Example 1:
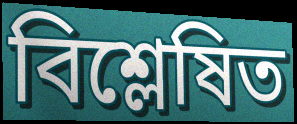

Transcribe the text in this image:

বিশ্লেষিত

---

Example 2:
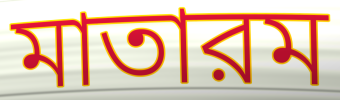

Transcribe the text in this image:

মাতারম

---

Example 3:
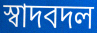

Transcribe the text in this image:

স্বাদবদল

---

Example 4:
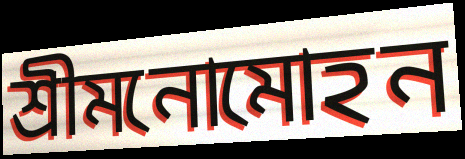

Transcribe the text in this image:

শ্রীমনোমোহন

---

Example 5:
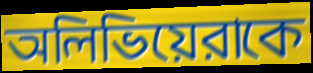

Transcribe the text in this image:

অলিভিয়েরাকে